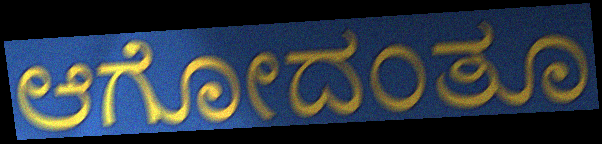
ಆಗೋದಂತೂ